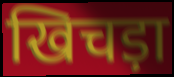
खिचड़ा